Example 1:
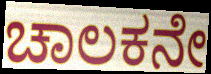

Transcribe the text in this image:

ಚಾಲಕನೇ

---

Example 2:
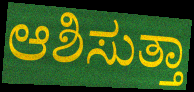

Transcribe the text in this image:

ಆಶಿಸುತ್ತಾ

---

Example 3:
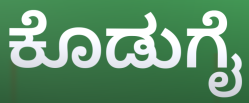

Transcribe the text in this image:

ಕೊಡುಗೈ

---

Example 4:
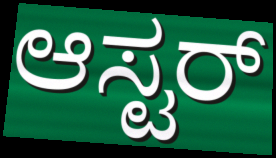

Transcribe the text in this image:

ಆಸ್ಟರ್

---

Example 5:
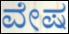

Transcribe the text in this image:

ವೇಷ